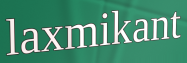
laxmikant